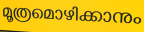
മൂത്രമൊഴിക്കാനും